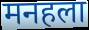
मनहला